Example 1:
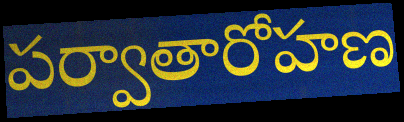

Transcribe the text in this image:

పర్వాతారోహణ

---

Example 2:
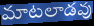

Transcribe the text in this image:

మాటలాడవు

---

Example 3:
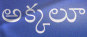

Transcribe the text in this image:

అక్కలూ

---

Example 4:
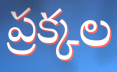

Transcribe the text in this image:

ప్రక్కల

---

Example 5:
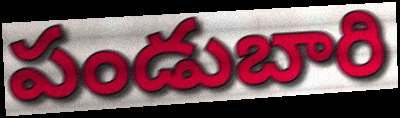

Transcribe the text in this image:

పండుబారి